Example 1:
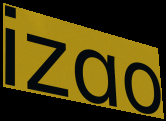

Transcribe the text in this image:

izao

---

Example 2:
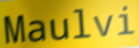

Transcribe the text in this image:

Maulvi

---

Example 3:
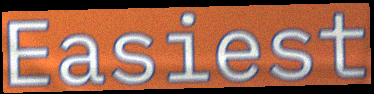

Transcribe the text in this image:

Easiest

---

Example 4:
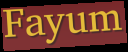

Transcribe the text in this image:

Fayum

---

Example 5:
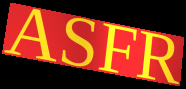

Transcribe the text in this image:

ASFR